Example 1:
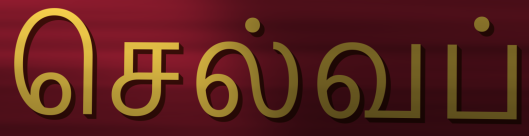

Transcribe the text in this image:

செல்வப்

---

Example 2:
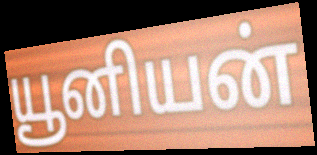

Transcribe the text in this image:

யூனியன்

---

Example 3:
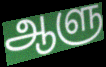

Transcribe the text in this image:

ஆளு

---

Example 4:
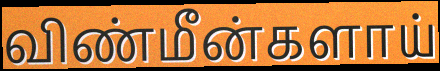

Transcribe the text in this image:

விண்மீன்களாய்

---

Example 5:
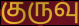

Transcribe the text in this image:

குருவு